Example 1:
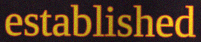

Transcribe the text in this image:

established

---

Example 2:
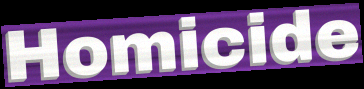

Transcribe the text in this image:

Homicide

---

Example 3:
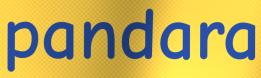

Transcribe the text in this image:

pandara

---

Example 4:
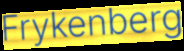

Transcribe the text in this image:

Frykenberg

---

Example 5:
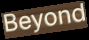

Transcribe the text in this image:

Beyond